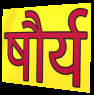
षौर्य